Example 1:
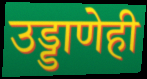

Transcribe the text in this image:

उड्डाणेही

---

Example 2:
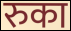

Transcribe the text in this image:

रुका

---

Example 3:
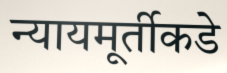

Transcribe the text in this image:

न्यायमूर्तीकडे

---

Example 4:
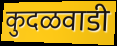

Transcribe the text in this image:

कुदळवाडी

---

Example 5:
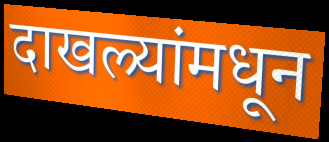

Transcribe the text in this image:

दाखल्यांमधून